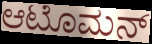
ಆಟೊಮನ್